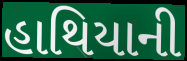
હાથિયાની